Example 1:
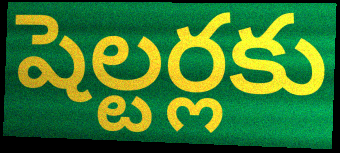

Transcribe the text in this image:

షెల్టర్లకు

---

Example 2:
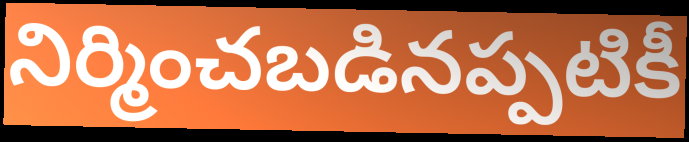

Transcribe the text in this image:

నిర్మించబడినప్పటికీ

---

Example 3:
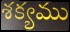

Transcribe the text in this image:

శక్యము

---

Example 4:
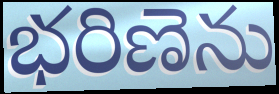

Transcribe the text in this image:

భరిణెను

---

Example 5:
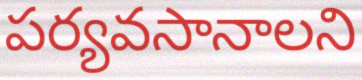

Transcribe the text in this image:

పర్యవసానాలని